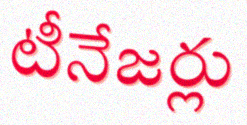
టీనేజర్లు